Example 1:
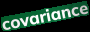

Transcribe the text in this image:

covariance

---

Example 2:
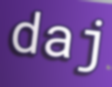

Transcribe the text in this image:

daj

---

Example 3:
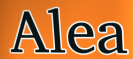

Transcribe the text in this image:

Alea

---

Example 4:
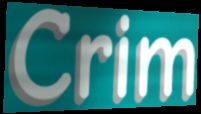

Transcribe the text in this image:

Crim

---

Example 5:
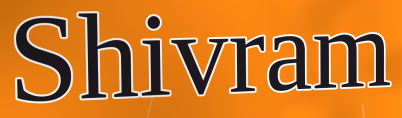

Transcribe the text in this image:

Shivram